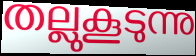
തല്ലുകൂടുന്നു